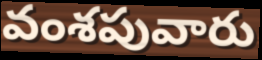
వంశపువారు